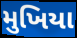
મુખિયા